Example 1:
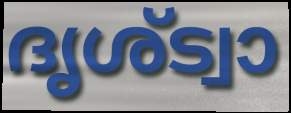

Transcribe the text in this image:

ദൃശ്ട്വാ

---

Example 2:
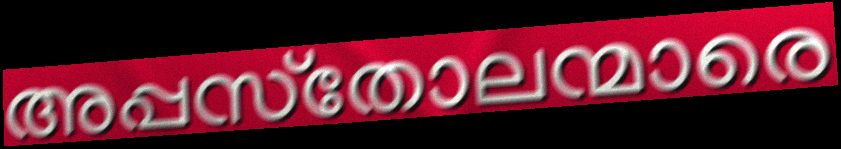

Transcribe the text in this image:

അപ്പസ്‌തോലന്മാരെ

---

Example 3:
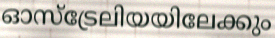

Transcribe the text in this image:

ഓസ്ട്രേലിയയിലേക്കും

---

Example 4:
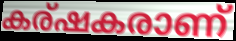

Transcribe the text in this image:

കര്ഷകരാണ്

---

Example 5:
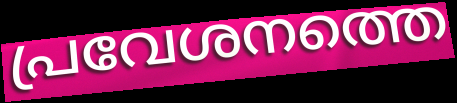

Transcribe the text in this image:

പ്രവേശനത്തെ